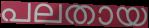
പലതായ